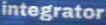
integrator